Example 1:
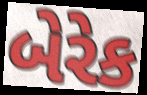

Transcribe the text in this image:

બેરેક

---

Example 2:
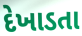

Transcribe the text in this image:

દેખાડતા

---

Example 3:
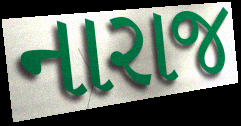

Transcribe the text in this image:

નારાજ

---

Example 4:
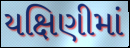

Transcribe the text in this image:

યક્ષિણીમાં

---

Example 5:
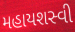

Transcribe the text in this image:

મહાયશસ્વી